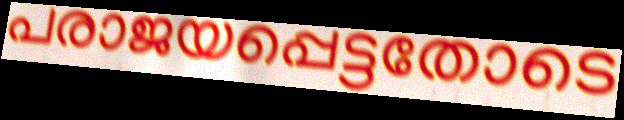
പരാജയപ്പെട്ടതോടെ